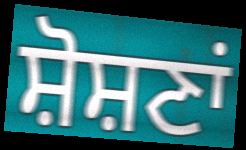
ਸ਼ੋਸ਼ਣਾਂ